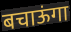
बचाऊंगा